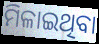
ମିଳାଇଥିବା